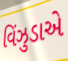
વિંઝુડાએ